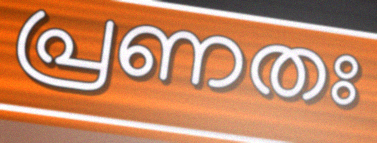
പ്രണതഃ